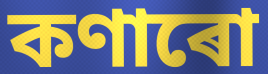
কণাৰো